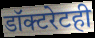
डॉक्‍टरेटही